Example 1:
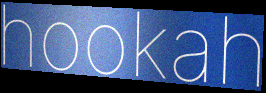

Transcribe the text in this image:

hookah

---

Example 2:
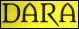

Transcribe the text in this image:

DARA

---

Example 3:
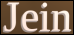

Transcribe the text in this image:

Jein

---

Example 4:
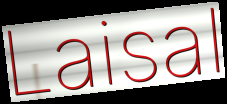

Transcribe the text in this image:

Laisal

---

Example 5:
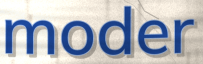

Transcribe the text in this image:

moder